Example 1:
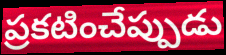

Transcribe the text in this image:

ప్రకటించేప్పుడు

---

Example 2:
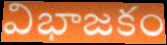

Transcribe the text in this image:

విభాజకం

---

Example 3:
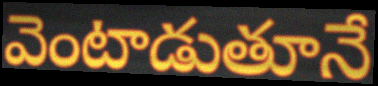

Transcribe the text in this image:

వెంటాడుతూనే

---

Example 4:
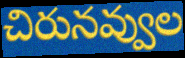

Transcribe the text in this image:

చిరునవ్వుల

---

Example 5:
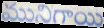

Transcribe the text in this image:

మునిగాయి